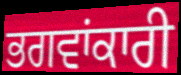
ਭਗਵਾਂਕਾਰੀ